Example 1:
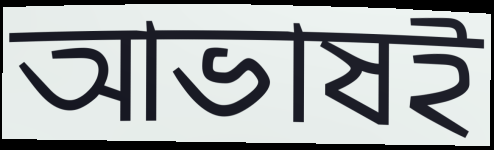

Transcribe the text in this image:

আভাষই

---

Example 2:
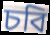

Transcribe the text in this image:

চবি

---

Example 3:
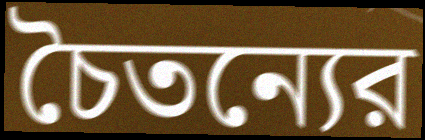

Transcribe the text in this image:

চৈতন্যের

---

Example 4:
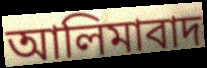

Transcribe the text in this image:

আলিমাবাদ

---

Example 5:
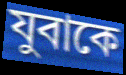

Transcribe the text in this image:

যুবাকে